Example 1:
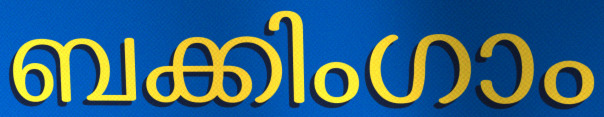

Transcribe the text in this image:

ബക്കിംഗാം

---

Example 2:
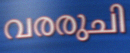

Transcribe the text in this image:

വരരുചി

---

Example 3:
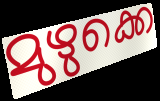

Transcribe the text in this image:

മുഴുക്കെ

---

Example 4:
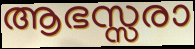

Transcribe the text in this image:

ആഭസ്സരാ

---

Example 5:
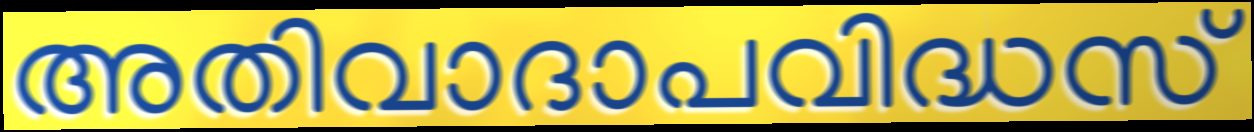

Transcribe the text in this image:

അതിവാദാപവിദ്ധസ്